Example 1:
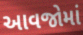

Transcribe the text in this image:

આવજોમાં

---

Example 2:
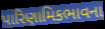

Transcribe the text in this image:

પારિણામિકભાવના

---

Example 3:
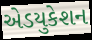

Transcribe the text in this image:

એડયુકેશન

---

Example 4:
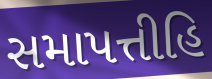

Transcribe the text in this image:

સમાપત્તીહિ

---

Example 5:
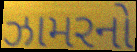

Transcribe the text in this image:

ઝામરનો